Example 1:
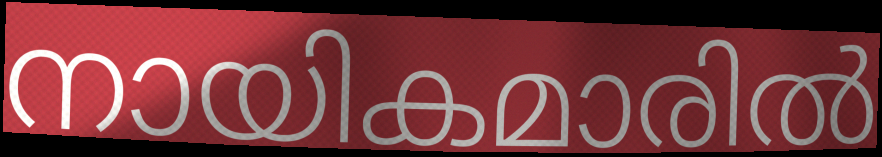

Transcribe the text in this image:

നായികമാരിൽ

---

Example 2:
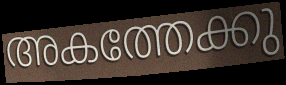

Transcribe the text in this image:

അകത്തേക്കു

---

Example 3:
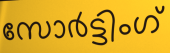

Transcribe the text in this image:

സോർട്ടിംഗ്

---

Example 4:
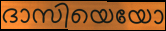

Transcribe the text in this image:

ദാസിയെയോ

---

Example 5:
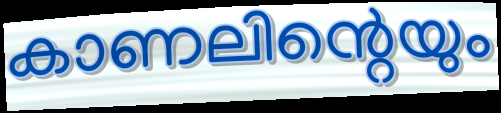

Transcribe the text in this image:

കാണലിന്റെയും